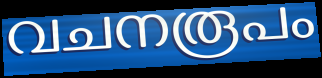
വചനരൂപം